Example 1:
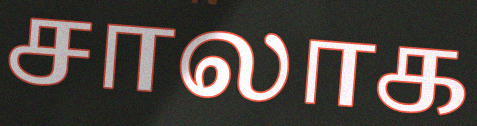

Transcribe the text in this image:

சாலாக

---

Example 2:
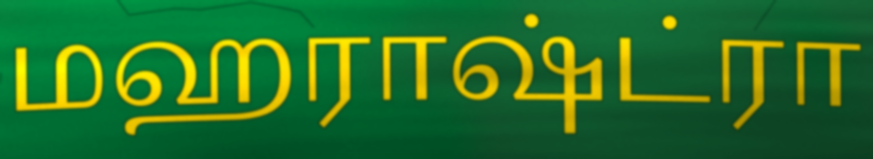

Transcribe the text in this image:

மஹராஷ்ட்ரா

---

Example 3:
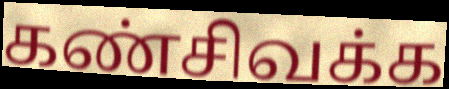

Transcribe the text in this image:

கண்சிவக்க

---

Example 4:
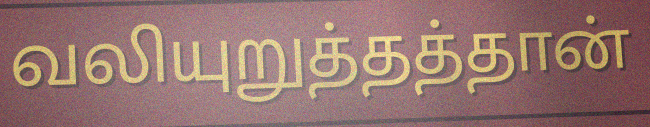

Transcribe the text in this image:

வலியுறுத்தத்தான்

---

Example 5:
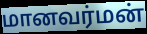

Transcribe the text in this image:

மானவர்மன்